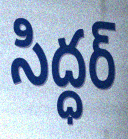
సిద్ధర్